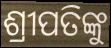
ଶ୍ରୀପତିଙ୍କୁ